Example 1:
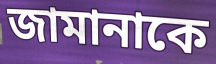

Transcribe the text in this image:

জামানাকে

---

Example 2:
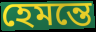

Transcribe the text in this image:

হেমন্তে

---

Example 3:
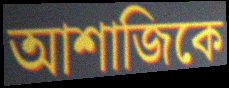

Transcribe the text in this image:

আশাজিকে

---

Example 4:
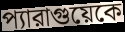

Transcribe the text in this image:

প্যারাগুয়েকে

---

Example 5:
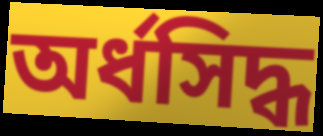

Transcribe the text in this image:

অর্ধসিদ্ধ